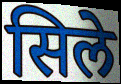
सिले